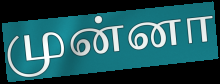
முன்னா